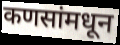
कणसांमधून